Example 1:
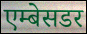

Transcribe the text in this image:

एम्बेसडर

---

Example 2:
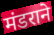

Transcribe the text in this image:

मंडराने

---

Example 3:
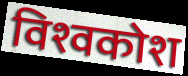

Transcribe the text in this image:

विश्वकोश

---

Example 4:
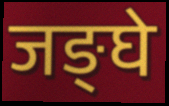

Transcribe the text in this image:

जङ्घे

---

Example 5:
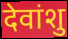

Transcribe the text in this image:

देवांशु